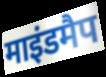
माइंडमैप